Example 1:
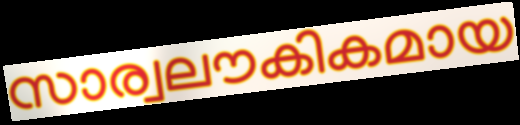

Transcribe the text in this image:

സാര്വലൗകികമായ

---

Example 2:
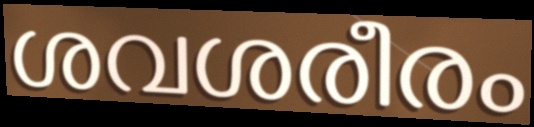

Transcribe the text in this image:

ശവശരീരം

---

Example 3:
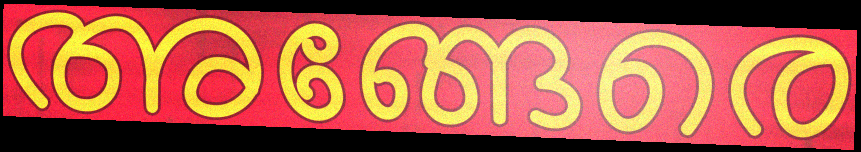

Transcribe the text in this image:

അങ്ങേരെ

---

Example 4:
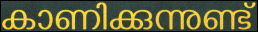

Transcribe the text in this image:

കാണിക്കുന്നുണ്ട്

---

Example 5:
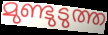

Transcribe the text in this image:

മുണ്ടുടുത്ത